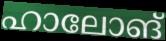
ഹാലോങ്